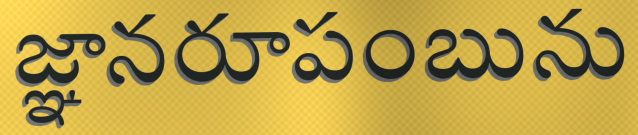
జ్ఞానరూపంబును